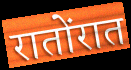
रातोंरात